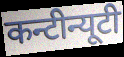
कन्टीन्यूटी